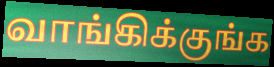
வாங்கிக்குங்க